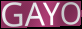
GAYO